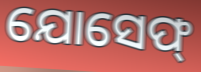
ଯୋସେଫ୍